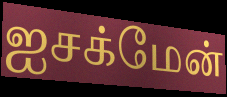
ஐசக்மேன்